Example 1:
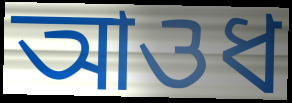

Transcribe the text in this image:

আওধ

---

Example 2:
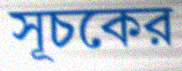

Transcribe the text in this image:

সূচকের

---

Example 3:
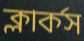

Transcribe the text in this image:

ক্লার্কস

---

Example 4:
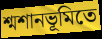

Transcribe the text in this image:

শ্মশানভূমিতে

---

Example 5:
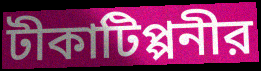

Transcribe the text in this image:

টীকাটিপ্পনীর